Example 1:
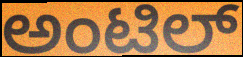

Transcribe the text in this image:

ಅಂಟಿಲ್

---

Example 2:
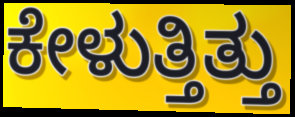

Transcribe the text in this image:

ಕೇಳುತ್ತಿತ್ತು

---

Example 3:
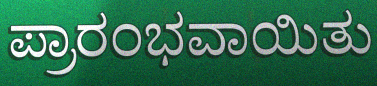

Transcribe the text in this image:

ಪ್ರಾರಂಭವಾಯಿತು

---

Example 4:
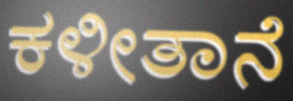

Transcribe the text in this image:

ಕಳೀತಾನೆ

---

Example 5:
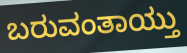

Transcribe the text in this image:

ಬರುವಂತಾಯ್ತು